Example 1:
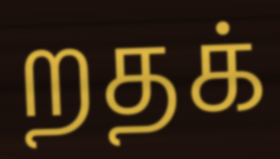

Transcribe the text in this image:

றதக்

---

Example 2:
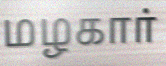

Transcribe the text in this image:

மழகார்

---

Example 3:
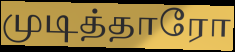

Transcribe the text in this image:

முடித்தாரோ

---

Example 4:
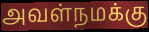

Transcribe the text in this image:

அவள்நமக்கு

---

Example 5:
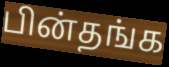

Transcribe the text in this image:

பின்தங்க